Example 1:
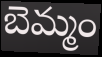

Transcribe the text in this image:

బెమ్మం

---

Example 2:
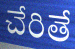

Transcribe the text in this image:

చేరితే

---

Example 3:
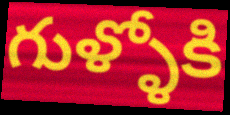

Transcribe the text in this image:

గుళ్ళోకి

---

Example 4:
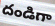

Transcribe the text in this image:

దండిగా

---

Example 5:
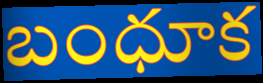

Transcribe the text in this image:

బంధూక